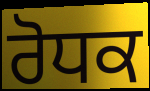
ਰੋਧਕ